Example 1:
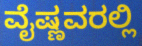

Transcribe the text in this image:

ವೈಷ್ಣವರಲ್ಲಿ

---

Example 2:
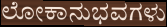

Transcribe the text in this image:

ಲೋಕಾನುಭವಗಳು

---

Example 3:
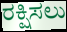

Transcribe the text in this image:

ರಕ್ಷಿಸಲು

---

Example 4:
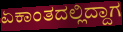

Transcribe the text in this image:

ಏಕಾಂತದಲ್ಲಿದ್ದಾಗ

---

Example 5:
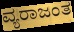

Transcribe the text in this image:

ವ್ಯರಾಜಂತ